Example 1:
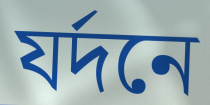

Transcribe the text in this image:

যর্দনে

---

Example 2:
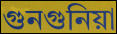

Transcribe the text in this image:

গুনগুনিয়া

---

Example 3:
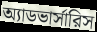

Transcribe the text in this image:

অ্যাডভার্সারিস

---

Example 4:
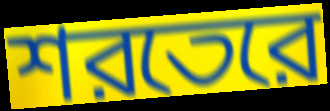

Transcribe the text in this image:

শরতেরে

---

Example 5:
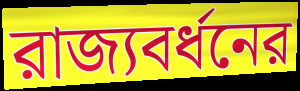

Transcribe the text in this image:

রাজ্যবর্ধনের